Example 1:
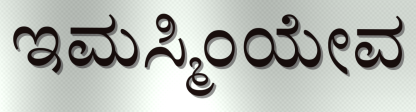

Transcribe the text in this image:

ಇಮಸ್ಮಿಂಯೇವ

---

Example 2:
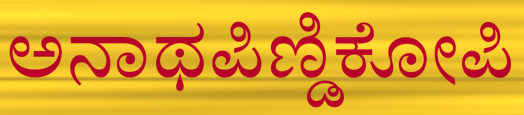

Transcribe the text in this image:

ಅನಾಥಪಿಣ್ಡಿಕೋಪಿ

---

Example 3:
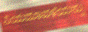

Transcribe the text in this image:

ನಿಯಮಾವಳಿಯನ್ನು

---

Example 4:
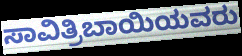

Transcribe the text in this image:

ಸಾವಿತ್ರಿಬಾಯಿಯವರು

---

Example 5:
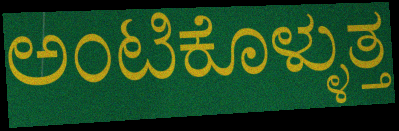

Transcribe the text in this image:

ಅಂಟಿಕೊಳ್ಳುತ್ತ